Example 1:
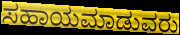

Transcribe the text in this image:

ಸಹಾಯಮಾಡುವರು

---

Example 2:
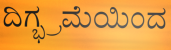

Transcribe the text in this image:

ದಿಗ್ಭ್ರಮೆಯಿಂದ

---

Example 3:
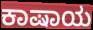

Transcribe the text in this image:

ಕಾಷಾಯ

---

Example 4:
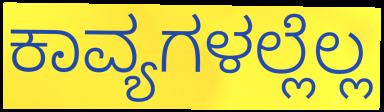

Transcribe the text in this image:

ಕಾವ್ಯಗಳಲ್ಲೆಲ್ಲ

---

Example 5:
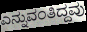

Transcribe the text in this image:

ಎನ್ನುವಂತಿದ್ದವು